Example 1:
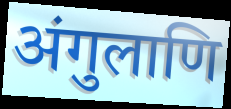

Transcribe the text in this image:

अंगुलाणि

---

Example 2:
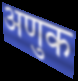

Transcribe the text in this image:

अणुक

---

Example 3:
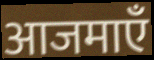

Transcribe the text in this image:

आजमाएँ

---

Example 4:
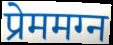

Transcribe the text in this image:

प्रेममग्न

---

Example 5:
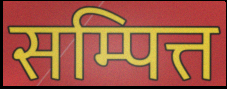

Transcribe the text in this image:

सम्पित्त